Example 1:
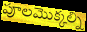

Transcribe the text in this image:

పూలమొక్కల్ని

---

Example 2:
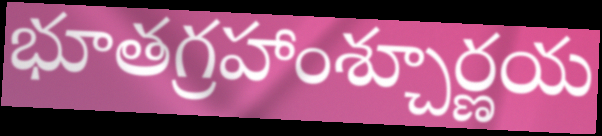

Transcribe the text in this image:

భూతగ్రహాంశ్చూర్ణయ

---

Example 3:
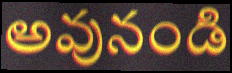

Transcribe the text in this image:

అవునండి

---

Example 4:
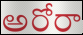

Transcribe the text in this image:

అరోరా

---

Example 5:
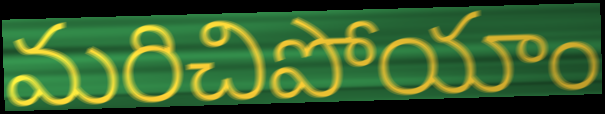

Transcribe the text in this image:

మరిచిపోయాం